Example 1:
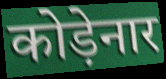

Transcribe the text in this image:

कोड़ेनार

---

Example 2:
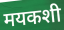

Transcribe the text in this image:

मयकशी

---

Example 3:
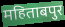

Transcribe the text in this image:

महिताबपुर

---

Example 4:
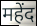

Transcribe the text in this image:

महेंद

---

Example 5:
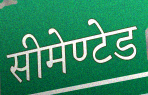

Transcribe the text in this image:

सीमेण्टेड